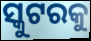
ସ୍କୁଟରକୁ